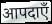
आपदाएँ